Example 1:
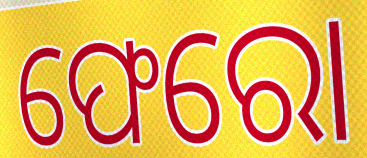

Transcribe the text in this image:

ଫେରୋ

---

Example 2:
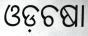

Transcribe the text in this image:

ଓଡ଼ଚଷା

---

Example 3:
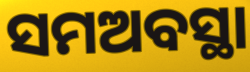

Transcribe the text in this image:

ସମଅବସ୍ଥା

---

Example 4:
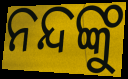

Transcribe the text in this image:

ନନ୍ଦଙ୍କୁ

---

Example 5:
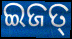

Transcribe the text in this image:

ଇଜତ୍